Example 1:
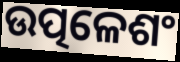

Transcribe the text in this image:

ଉତ୍ପଳେଶଂ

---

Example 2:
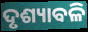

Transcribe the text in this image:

ଦୃଶ୍ୟାବଳି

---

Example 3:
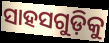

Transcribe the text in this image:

ସାହସଗୁଡ଼ିକୁ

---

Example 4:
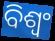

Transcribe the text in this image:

ବିଶ୍ୱଂ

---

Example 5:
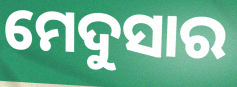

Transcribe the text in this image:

ମେଦୁସାର